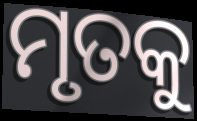
ମୃତକୁ